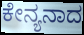
ಕೇನ್ಯನಾದ